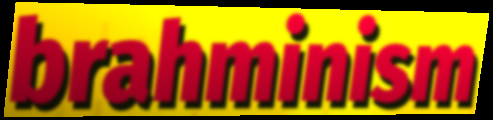
brahminism